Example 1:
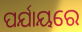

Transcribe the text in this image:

ପର୍ଯାୟରେ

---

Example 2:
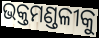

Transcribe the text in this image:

ଭକ୍ତମଣ୍ଡଳୀକୁ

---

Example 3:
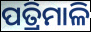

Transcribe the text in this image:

ପତ୍ରିମାଳି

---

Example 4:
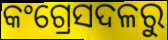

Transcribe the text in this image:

କଂଗ୍ରେସଦଳରୁ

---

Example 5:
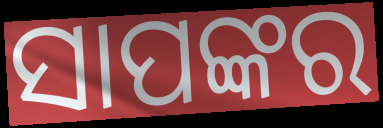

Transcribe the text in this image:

ସାପଙ୍କର